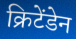
क्रिटेंडेन